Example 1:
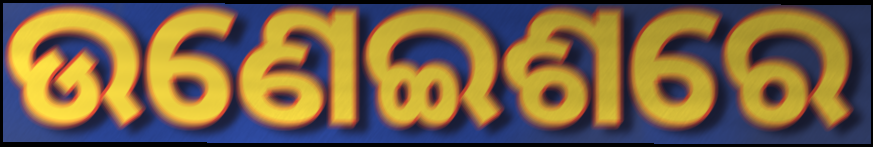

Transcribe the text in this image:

ଉଣେଇଶରେ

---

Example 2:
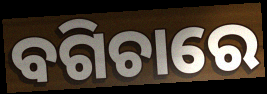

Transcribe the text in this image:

ବଗିଚାରେ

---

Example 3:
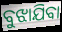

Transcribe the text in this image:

ବୁଝାଯିବା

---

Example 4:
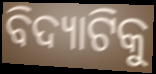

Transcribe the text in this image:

ବିଦ୍ୟାଟିକୁ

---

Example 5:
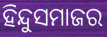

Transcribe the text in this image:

ହିନ୍ଦୁସମାଜର